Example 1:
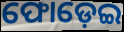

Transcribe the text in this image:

ଫୋଡ଼େଇ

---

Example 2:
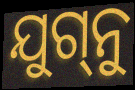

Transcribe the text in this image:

ଯୁଗ୍‌ନୁ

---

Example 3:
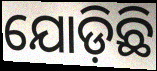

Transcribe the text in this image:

ଯୋଡ଼ିଛି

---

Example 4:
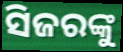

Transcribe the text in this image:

ସିଜରଙ୍କୁ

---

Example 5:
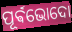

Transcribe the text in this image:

ପୂର୍ଵଭୋଦୋ